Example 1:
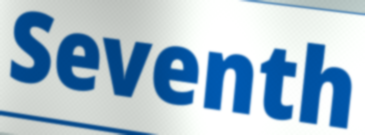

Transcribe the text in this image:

Seventh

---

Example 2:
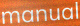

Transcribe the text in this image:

manual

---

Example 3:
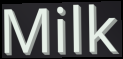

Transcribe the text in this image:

Milk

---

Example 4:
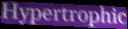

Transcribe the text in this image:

Hypertrophic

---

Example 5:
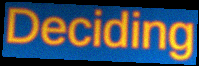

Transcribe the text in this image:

Deciding